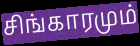
சிங்காரமும்